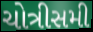
ચોત્રીસમી